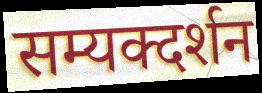
सम्यक्दर्शन